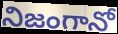
నిజంగానో